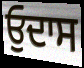
ਓੁਦਾਸ